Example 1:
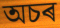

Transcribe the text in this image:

অচৰ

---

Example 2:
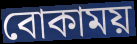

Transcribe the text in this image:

বোকাময়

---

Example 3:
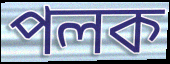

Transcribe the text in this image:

পলক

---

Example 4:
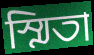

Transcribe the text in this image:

স্মিতা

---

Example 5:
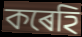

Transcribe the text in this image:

কৰেহি